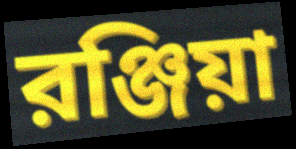
রঞ্জিয়া